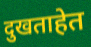
दुखताहेत